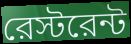
রেস্টরেন্ট